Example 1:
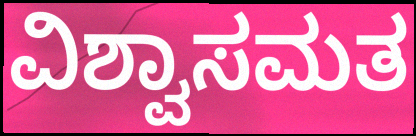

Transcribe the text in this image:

ವಿಶ್ವಾಸಮತ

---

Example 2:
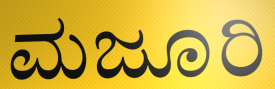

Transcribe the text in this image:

ಮಜೂರಿ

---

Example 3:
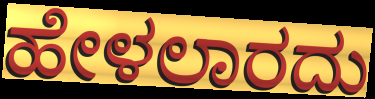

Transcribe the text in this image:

ಹೇಳಲಾರದು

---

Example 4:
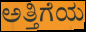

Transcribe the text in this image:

ಅತ್ತಿಗೆಯ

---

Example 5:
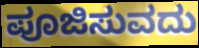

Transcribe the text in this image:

ಪೂಜಿಸುವದು